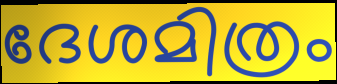
ദേശമിത്രം